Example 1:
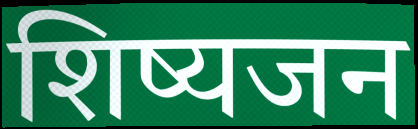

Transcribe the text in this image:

शिष्यजन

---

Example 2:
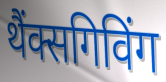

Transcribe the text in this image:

थैंक्सगिविंग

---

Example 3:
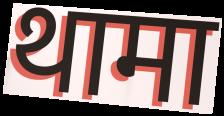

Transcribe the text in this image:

थामा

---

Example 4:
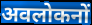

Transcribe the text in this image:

अवलोकनों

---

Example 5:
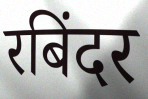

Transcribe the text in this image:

रबिंदर